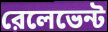
রেলেভেন্ট